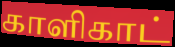
காளிகாட்